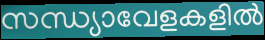
സന്ധ്യാവേളകളിൽ